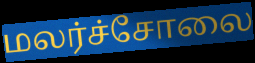
மலர்ச்சோலை